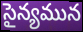
సైన్యమున